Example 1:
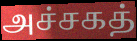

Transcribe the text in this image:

அச்சகத்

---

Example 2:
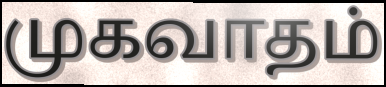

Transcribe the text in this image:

முகவாதம்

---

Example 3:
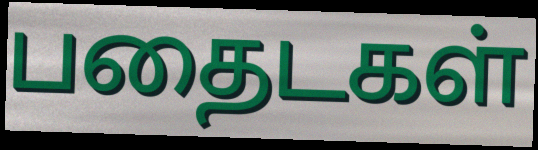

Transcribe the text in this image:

பதைடகள்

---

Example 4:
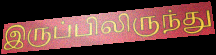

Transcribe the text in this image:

இருப்பிலிருந்து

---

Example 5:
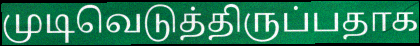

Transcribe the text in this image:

முடிவெடுத்திருப்பதாக